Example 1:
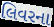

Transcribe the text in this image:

લિવરના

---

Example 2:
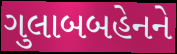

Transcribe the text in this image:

ગુલાબબહેનને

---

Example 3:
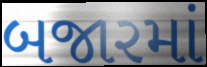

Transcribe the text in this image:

બજારમાં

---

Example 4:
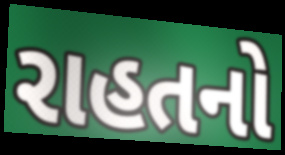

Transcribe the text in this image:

રાહતનો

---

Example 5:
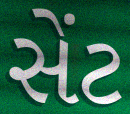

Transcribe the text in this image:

સેંટ